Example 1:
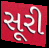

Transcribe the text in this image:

સૂરી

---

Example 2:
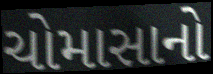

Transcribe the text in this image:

ચોમાસાનો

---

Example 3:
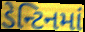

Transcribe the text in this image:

ડેન્ટિનમાં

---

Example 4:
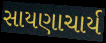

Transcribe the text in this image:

સાયણાચાર્ય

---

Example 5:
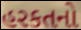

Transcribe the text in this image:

હરકતનો